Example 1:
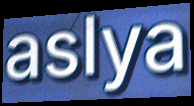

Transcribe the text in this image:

aslya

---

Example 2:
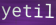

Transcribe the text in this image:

yetil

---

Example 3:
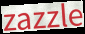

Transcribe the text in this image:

zazzle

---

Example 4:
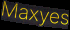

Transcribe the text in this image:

Maxyes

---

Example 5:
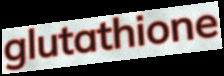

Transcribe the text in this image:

glutathione